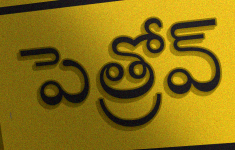
పెత్రోవ్